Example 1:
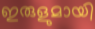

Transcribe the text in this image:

ഇരുളുമായി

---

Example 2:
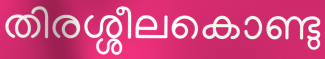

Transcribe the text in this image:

തിരശ്ശീലകൊണ്ടു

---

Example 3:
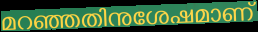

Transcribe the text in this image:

മറഞ്ഞതിനുശേഷമാണ്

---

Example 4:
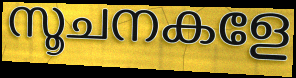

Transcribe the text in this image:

സൂചനകളേ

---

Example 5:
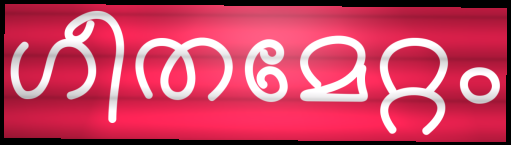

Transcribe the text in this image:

ഗീതമേറ്റം